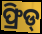
ଫ୍ରିଡ୍